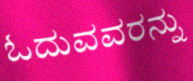
ಓದುವವರನ್ನು